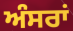
ਅੰਸਰਾਂ